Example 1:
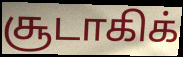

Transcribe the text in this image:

சூடாகிக்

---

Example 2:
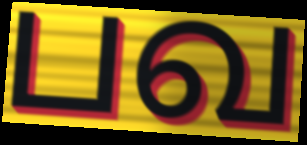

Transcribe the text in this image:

பவ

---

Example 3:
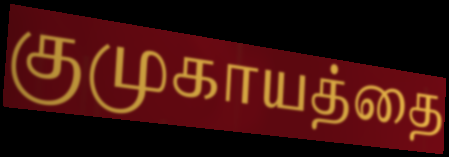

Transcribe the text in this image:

குமுகாயத்தை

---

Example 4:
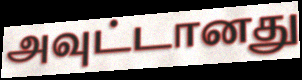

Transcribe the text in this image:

அவுட்டானது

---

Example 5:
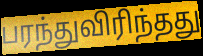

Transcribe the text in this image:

பரந்துவிரிந்தது